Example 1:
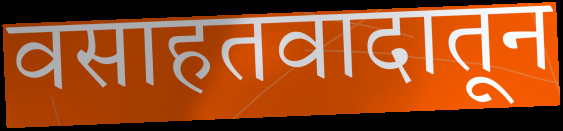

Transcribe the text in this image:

वसाहतवादातून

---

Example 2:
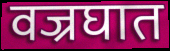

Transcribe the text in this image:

वज्रघात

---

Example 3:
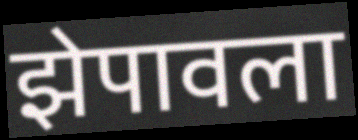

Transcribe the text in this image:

झेपावला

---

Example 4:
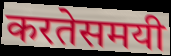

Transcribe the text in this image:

करतेसमयी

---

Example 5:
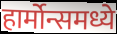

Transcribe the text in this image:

हार्मोन्समध्ये